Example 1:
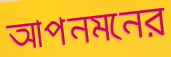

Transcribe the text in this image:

আপনমনের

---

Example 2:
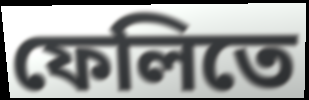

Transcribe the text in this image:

ফেলিতে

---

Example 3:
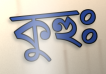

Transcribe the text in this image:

কুহুঃ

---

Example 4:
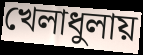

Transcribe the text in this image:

খেলাধুলায়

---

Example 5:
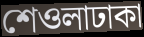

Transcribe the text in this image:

শেওলাঢাকা